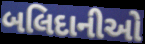
બલિદાનીઓ